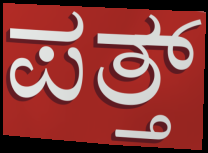
ಪತ್ತ್